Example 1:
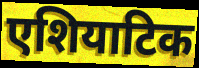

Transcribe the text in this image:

एशियाटिक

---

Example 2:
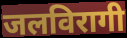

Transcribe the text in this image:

जलविरागी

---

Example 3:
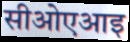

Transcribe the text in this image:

सीओएआइ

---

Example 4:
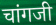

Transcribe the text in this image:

चांगजी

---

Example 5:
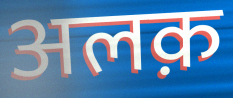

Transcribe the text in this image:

अलक़